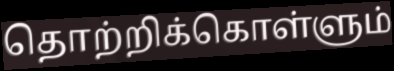
தொற்றிக்கொள்ளும்